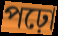
পঢ়ো